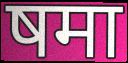
षमा